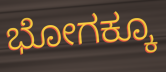
ಭೋಗಕ್ಕೂ